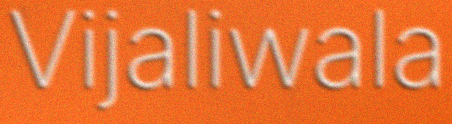
Vijaliwala